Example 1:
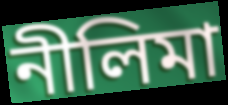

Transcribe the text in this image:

নীলিমা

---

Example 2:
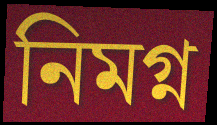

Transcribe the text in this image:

নিমগ্ন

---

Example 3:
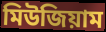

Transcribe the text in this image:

মিউজিয়াম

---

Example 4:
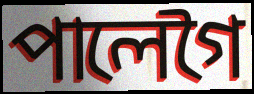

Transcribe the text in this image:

পালেগৈ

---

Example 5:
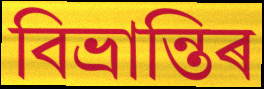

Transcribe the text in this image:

বিভ্ৰান্তিৰ